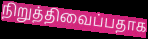
நிறுத்திவைப்பதாக